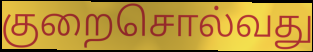
குறைசொல்வது